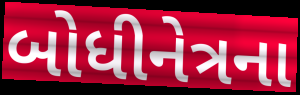
બોધીનેત્રના